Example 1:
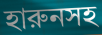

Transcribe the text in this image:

হারুনসহ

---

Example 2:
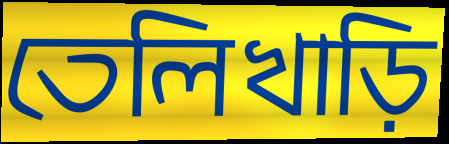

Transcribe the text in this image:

তেলিখাড়ি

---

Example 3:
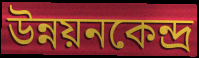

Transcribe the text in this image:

উন্নয়নকেন্দ্র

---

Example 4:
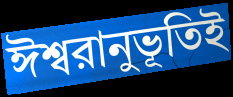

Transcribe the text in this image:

ঈশ্বরানুভূতিই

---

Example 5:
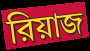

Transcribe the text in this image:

রিয়াজ